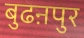
बुढऩपुर